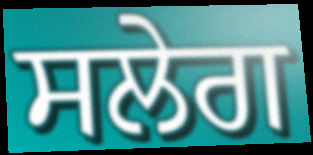
ਸਲੇਗ